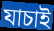
যাচাই